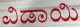
ವಿಡಾಯಿ